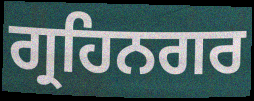
ਗ੍ਰਹਿਨਗਰ